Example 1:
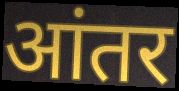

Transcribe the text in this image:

आंतर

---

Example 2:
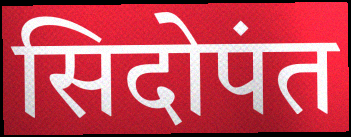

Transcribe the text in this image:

सिदोपंत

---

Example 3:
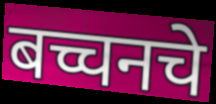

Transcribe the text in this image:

बच्चनचे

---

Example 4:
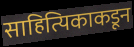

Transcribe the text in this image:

साहित्यिकाकडून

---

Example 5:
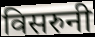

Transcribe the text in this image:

विसरुनी